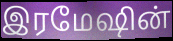
இரமேஷின்